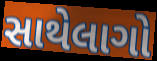
સાથેલાગો